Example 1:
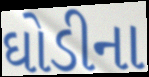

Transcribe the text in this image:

ઘોડીના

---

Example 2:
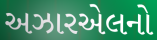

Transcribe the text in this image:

અઝારએલનો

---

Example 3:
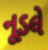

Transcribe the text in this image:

નૂડલે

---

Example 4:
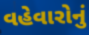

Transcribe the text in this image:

વહેવારોનું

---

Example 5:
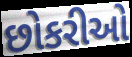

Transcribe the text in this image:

છોકરીઓ